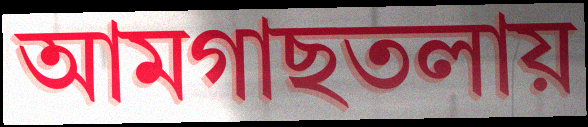
আমগাছতলায়